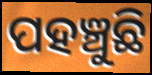
ପହଞ୍ଚୁଛି